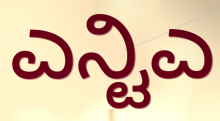
ಎನ್ಟಿಎ